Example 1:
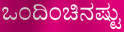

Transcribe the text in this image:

ಒಂದಿಂಚಿನಷ್ಟು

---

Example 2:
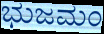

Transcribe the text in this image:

ಭುಜಮಂ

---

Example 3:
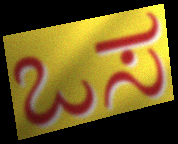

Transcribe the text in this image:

ಒಸ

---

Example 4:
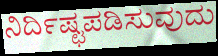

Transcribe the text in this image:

ನಿರ್ದಿಷ್ಟಪಡಿಸುವುದು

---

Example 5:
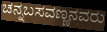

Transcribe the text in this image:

ಚನ್ನಬಸವಣ್ಣನವರು